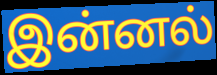
இன்னல்